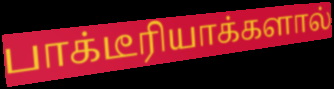
பாக்டீரியாக்களால்